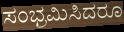
ಸಂಭ್ರಮಿಸಿದರೂ